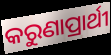
କରୁଣାପ୍ରାର୍ଥୀ